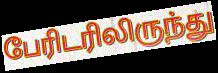
பேரிடரிலிருந்து